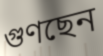
গুণছেন